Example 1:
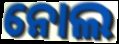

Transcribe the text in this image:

ନୋଲ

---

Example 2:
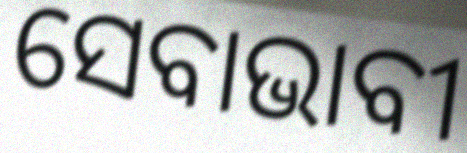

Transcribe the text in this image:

ସେବାଭାବୀ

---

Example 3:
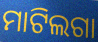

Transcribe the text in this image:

ମାଟିଲଗା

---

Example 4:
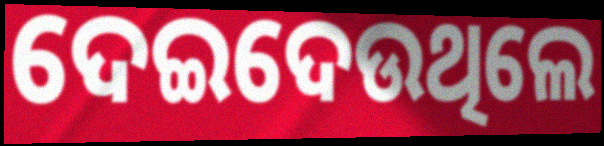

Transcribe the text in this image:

ଦେଇଦେଉଥିଲେ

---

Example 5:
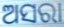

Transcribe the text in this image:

ଅସରା